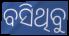
ବସିଥିବୁ